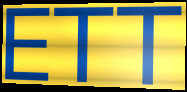
ETT